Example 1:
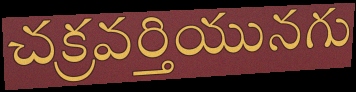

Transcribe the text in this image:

చక్రవర్తియునగు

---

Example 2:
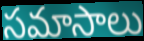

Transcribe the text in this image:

సమాసాలు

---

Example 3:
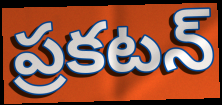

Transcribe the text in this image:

ప్రకటన్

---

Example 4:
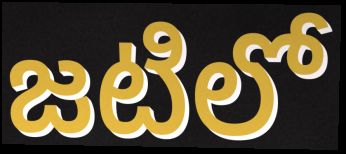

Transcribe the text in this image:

జటిలో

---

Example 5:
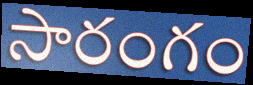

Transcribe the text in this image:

సారంగం